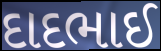
દાદભાઈ